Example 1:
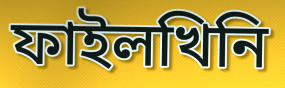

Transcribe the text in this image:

ফাইলখিনি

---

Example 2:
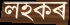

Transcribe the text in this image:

লহকৰ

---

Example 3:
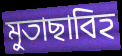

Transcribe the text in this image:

মুতাছাবিহ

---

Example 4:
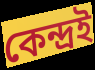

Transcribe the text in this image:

কেন্দ্ৰই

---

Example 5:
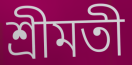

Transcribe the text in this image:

শ্ৰীমতী